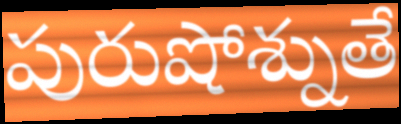
పురుషోశ్నుతే